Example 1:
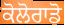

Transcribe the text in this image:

ਕੋਲੋਰਾਡੋ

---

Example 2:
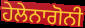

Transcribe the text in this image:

ਹੇਲੇਨਾਗੋਨੀ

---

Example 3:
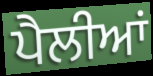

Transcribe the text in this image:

ਪੈਲੀਆਂ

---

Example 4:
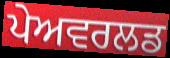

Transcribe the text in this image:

ਪੇਅਵਰਲਡ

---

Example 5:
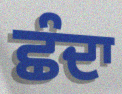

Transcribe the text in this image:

ਛੰਦਾ